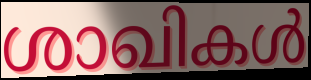
ശാഖികൾ